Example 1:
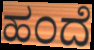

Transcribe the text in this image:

ಹಂದೆ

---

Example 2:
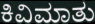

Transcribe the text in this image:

ಕಿವಿಮಾತು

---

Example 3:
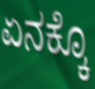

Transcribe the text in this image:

ಏನಕ್ಕೊ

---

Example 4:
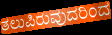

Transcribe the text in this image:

ತಲುಪಿರುವುದರಿಂದ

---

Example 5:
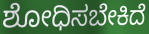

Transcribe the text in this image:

ಶೋಧಿಸಬೇಕಿದೆ